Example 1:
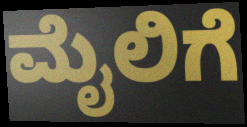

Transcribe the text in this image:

ಮೈಲಿಗೆ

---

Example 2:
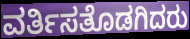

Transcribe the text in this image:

ವರ್ತಿಸತೊಡಗಿದರು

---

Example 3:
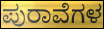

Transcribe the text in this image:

ಪುರಾವೆಗಳ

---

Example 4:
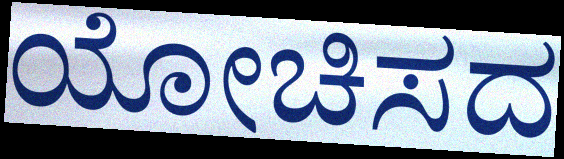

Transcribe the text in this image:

ಯೋಚಿಸದ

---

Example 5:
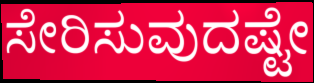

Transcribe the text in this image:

ಸೇರಿಸುವುದಷ್ಟೇ